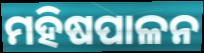
ମହିଷପାଳନ